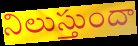
నిలుస్తుందా